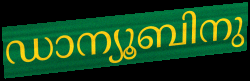
ഡാന്യൂബിനു